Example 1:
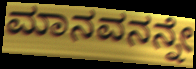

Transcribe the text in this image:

ಮಾನವನನ್ನೇ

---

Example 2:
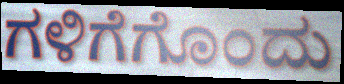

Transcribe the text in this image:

ಗಳಿಗೆಗೊಂದು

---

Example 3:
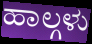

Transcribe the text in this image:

ಹಾಲ್ಗಳು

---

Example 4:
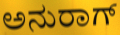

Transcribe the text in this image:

ಅನುರಾಗ್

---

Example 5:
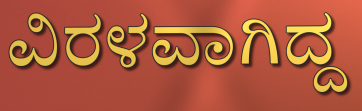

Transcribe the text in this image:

ವಿರಳವಾಗಿದ್ದ